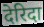
देरिदा